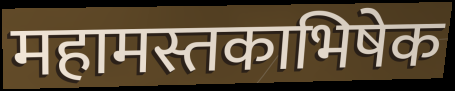
महामस्तकाभिषेक